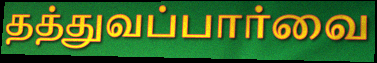
தத்துவப்பார்வை